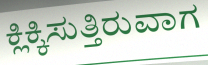
ಕ್ಲಿಕ್ಕಿಸುತ್ತಿರುವಾಗ